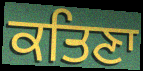
ਕਤਿਣਾ